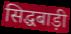
सिद्धबाड़ी